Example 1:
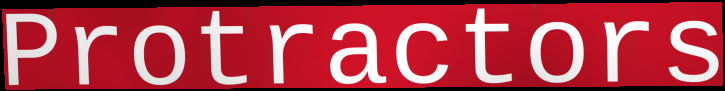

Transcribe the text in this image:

Protractors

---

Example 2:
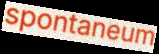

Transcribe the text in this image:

spontaneum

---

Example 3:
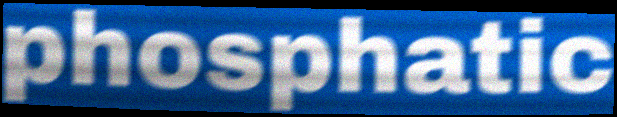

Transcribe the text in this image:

phosphatic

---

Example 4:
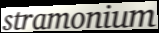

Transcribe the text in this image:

stramonium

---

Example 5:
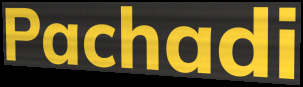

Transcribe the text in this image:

Pachadi